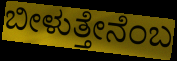
ಬೀಳುತ್ತೇನೆಂಬ